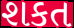
શકત